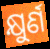
କ୍ଷୁର୍ଣ